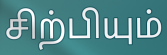
சிற்பியும்